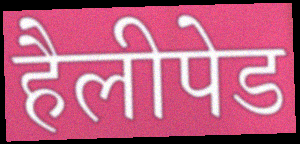
हैलीपेड